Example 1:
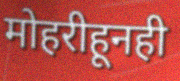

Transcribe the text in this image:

मोहरीहूनही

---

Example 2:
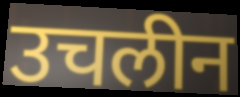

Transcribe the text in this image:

उचलीन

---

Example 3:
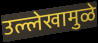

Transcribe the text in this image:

उल्लेखामुळे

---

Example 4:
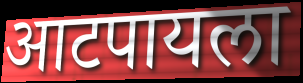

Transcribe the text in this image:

आटपायला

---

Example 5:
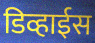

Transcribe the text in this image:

डिव्हाईस